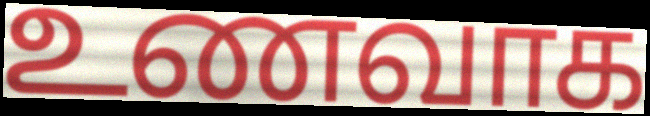
உணவாக